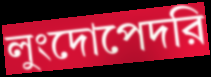
লুংদোপেদরি